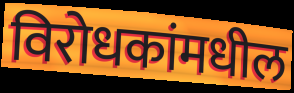
विरोधकांमधील